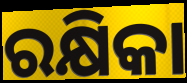
ରକ୍ଷିକା